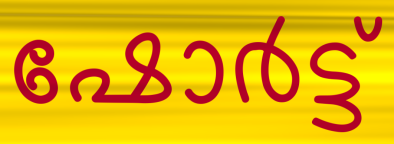
ഷോർട്ട്